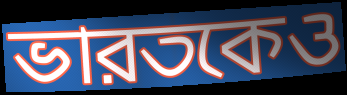
ভারতকেও